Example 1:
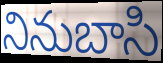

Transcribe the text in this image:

నినుబాసి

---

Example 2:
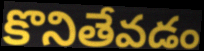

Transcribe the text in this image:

కొనితేవడం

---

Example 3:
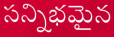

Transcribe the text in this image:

సన్నిభమైన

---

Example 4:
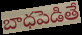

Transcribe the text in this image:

బాధపెడితే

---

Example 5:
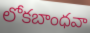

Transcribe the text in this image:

లోకబాంధవా